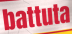
battuta